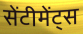
सेंटीमेंट्स